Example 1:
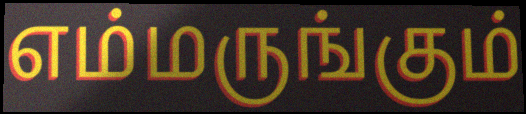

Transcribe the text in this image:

எம்மருங்கும்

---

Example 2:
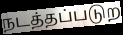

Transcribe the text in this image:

நடத்தப்படுற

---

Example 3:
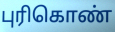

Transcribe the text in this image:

புரிகொண்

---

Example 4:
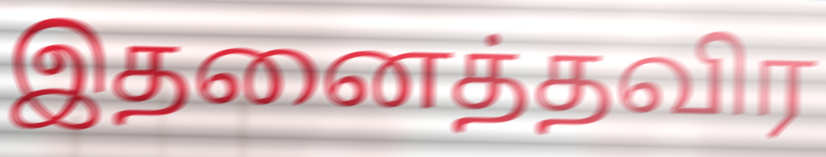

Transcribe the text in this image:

இதனைத்தவிர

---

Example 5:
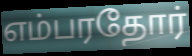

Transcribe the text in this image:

எம்பரதோர்